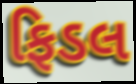
ફિડલ